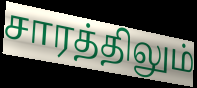
சாரத்திலும்